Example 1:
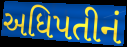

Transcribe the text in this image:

અધિપતીનં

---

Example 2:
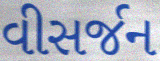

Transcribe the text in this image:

વીસર્જન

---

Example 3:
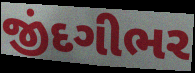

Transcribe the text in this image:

જીંદગીભર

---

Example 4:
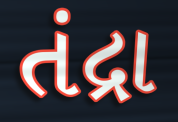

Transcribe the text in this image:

તંદ્રા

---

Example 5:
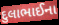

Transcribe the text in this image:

દુલાભાઈના